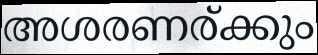
അശരണര്ക്കും